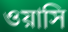
ওয়াসি